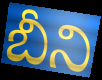
బీని